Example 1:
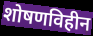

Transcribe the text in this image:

शोषणविहीन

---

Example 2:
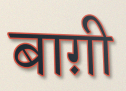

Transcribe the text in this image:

बाग़ी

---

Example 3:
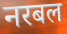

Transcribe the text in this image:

नरबल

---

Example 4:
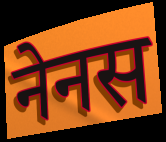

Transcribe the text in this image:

नेनस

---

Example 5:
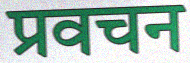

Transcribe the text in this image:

प्रवचन